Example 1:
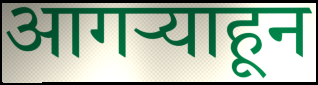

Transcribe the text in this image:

आगऱ्याहून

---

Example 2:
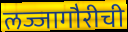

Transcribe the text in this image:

लज्जागौरीची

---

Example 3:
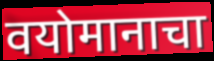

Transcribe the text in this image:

वयोमानाचा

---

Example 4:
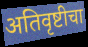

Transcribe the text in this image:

अतिवृष्टीचा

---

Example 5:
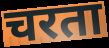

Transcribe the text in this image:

चरता